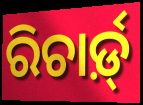
ରିଚାର୍ଡ଼୍